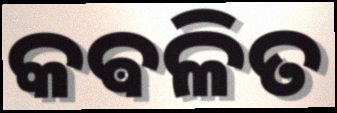
କଵଳିତ